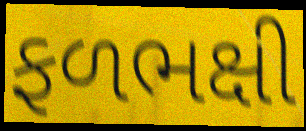
ફળભક્ષી